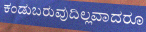
ಕಂಡುಬರುವುದಿಲ್ಲವಾದರೂ